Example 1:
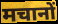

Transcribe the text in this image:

मचानों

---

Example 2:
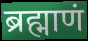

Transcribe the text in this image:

ब्रह्माणं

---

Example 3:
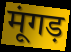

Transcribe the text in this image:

मूंगड़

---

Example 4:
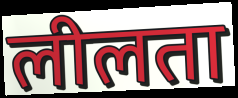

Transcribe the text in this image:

लीलता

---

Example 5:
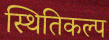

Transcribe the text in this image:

स्थितिकल्प